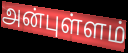
அன்புள்ளம்